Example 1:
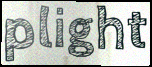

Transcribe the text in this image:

plight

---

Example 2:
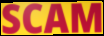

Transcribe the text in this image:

SCAM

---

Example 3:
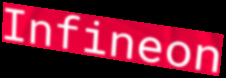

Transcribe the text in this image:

Infineon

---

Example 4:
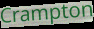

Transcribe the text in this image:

Crampton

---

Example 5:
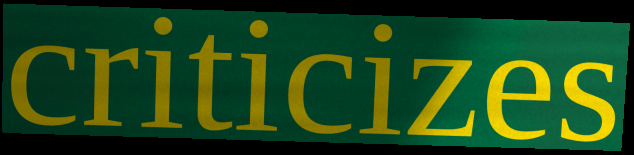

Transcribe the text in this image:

criticizes